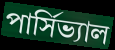
পার্সিভ্যাল